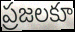
ప్రజలకూ